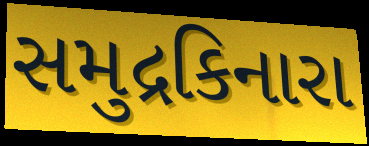
સમુદ્રકિનારા